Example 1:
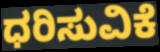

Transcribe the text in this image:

ಧರಿಸುವಿಕೆ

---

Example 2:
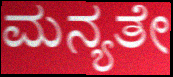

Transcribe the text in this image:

ಮನ್ಯತೇ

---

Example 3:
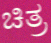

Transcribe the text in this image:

ಚಿತ್ರ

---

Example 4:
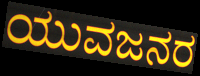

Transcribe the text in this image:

ಯುವಜನರ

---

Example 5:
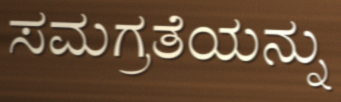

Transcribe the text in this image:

ಸಮಗ್ರತೆಯನ್ನು